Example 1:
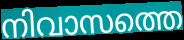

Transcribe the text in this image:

നിവാസത്തെ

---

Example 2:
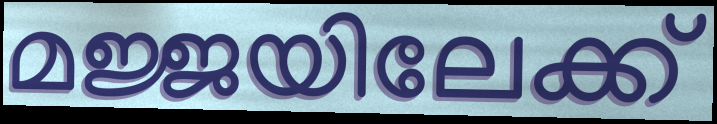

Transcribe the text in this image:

മജ്ജയിലേക്ക്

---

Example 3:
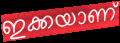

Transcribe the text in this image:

ഇക്കയാണ്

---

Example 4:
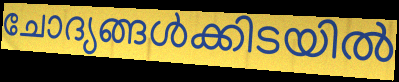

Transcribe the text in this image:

ചോദ്യങ്ങൾക്കിടയിൽ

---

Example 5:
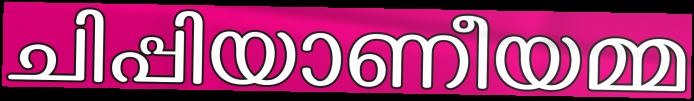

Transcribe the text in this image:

ചിപ്പിയാണീയമ്മ